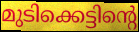
മുടിക്കെട്ടിന്റെ